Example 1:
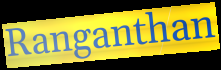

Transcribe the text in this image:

Ranganthan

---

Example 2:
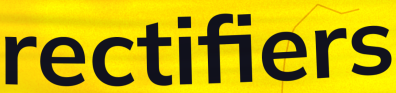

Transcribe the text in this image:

rectifiers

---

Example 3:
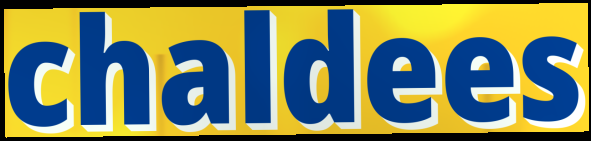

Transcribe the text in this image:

chaldees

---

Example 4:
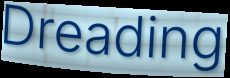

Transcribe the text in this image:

Dreading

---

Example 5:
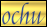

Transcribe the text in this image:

ochu